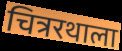
चित्ररथाला